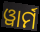
ୱାର୍ମ